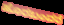
ಹೊರಬಂದರೆ